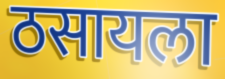
ठसायला